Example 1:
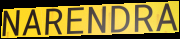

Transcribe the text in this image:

NARENDRA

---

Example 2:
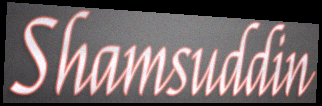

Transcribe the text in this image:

Shamsuddin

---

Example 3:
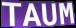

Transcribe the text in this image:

TAUM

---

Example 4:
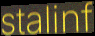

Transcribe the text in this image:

stalinf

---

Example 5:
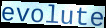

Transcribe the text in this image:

evolute